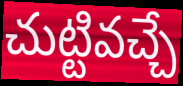
చుట్టివచ్చే